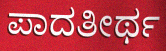
ಪಾದತೀರ್ಥ